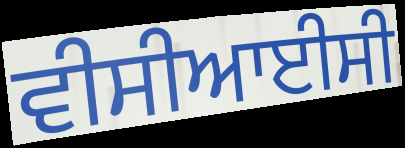
ਵੀਸੀਆਈਸੀ